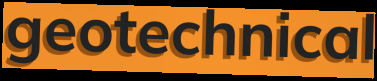
geotechnical